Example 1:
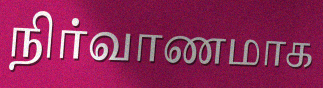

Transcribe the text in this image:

நிர்வாணமாக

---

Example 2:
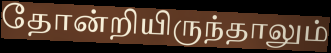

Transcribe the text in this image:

தோன்றியிருந்தாலும்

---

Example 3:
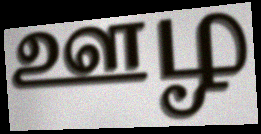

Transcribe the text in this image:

ஊழ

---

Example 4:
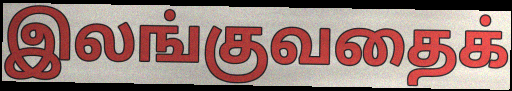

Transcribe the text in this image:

இலங்குவதைக்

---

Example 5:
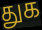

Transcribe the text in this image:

துக